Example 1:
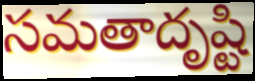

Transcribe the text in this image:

సమతాదృష్టి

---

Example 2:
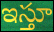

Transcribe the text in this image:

ఇస్తూ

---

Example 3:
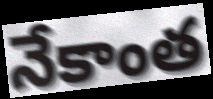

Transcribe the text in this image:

నేకాంత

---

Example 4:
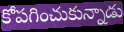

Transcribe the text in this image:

కోపగించుకున్నాడు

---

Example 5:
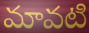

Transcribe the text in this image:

మావటి